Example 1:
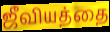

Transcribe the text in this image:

ஜீவியத்தை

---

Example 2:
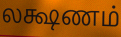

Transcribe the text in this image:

லக்ஷணம்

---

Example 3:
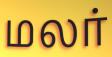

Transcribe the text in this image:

மலர்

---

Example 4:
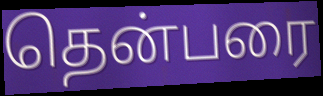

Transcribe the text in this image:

தென்பரை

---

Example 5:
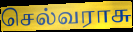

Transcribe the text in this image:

செல்வராசு